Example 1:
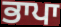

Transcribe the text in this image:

ਭਾਪਾ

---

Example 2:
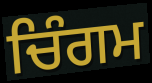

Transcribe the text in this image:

ਚਿੰਗਮ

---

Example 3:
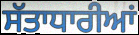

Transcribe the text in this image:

ਸੱਤਾਧਾਰੀਆਂ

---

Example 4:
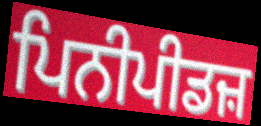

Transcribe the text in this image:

ਪਿਨੀਪੀਡਜ਼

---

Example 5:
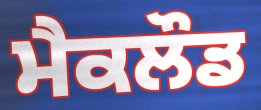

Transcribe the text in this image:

ਮੈਕਲੌਡ